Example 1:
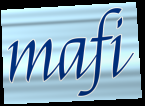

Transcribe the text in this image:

mafi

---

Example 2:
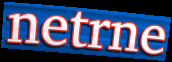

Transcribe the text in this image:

netrne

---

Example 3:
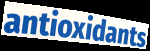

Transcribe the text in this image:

antioxidants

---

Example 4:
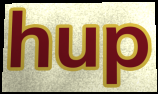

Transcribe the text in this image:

hup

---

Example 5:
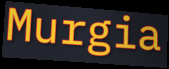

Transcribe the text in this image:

Murgia